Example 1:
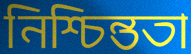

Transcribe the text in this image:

নিশ্চিন্ততা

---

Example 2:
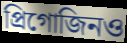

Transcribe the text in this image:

প্রিগোজিনও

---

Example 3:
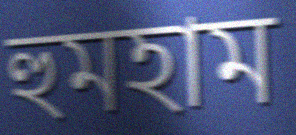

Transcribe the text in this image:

হুমহাম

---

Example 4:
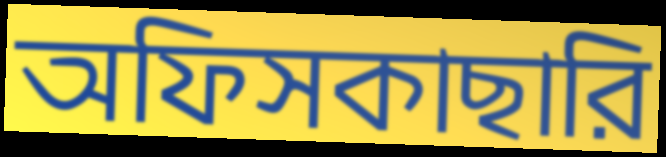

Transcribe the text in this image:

অফিসকাছারি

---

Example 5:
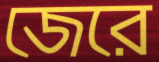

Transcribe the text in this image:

জেরে